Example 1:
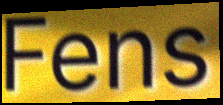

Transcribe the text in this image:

Fens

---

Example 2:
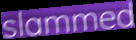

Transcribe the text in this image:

slammed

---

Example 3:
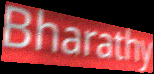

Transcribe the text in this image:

Bharathy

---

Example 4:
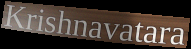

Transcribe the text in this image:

Krishnavatara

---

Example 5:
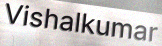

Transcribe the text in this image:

Vishalkumar